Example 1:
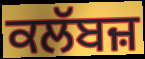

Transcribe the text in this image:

ਕਲੱਬਜ਼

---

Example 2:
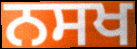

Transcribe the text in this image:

ਨਸਖ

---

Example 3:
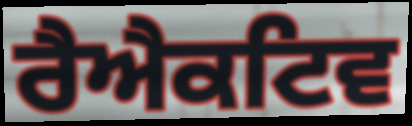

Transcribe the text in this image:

ਰੈਐਕਟਿਵ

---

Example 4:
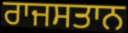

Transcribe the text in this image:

ਰਾਜਸਤਾਨ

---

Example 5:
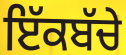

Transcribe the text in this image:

ਇੱਕਬੱਚੇ